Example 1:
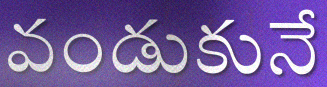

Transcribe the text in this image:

వండుకునే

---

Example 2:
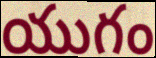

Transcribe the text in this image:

యుగం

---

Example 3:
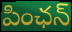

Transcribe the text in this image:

పింఛన్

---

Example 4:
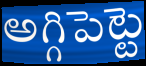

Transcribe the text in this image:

అగ్గిపెట్టె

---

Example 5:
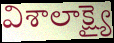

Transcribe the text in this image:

విశాలాక్ష్యై